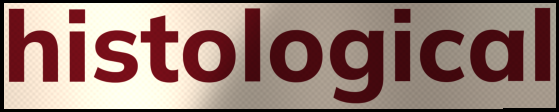
histological